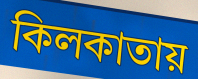
কিলকাতায়